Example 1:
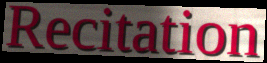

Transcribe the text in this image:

Recitation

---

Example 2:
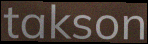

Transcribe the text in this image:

takson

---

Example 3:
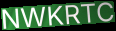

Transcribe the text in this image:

NWKRTC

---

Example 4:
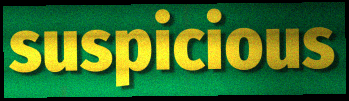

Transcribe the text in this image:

suspicious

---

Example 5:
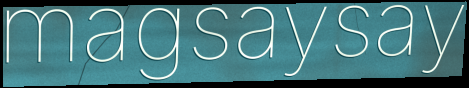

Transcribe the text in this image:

magsaysay